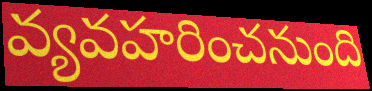
వ్యవహరించనుంది